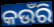
କଉଁରି